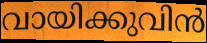
വായിക്കുവിൻ